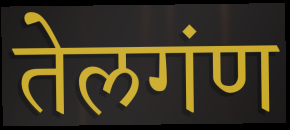
तेलगंण